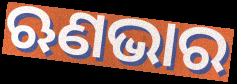
ଋଣଭାର